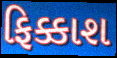
ફિક્કાશ